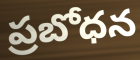
ప్రబోధన